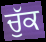
ਚੁੱਕ